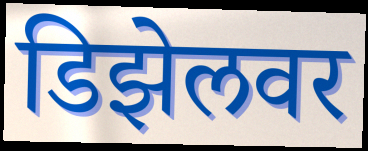
डिझेलवर